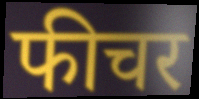
फीचर